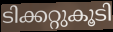
ടിക്കറ്റുകൂടി